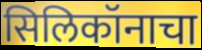
सिलिकॉनाचा